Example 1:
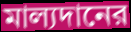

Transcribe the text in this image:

মাল্যদানের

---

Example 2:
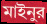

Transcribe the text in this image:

মাইনুর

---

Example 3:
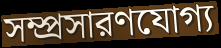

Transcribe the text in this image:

সম্প্রসারণযোগ্য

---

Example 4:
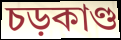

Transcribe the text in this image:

চড়কাণ্ড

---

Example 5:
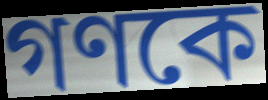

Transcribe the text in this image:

গণকে